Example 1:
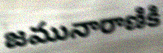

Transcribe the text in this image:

జమునారాణికి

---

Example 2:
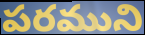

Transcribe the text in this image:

పరముని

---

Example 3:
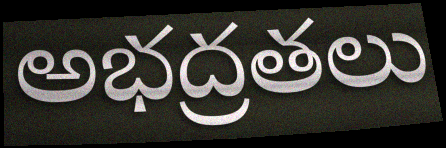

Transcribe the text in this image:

అభద్రతలు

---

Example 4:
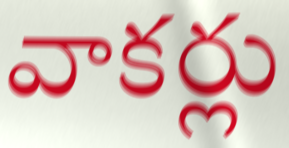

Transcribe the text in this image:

వాకర్లు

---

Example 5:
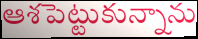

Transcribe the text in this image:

ఆశపెట్టుకున్నాను